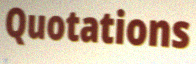
Quotations